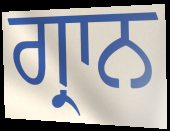
ਗ੍ਰਾਨ